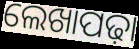
ଲେଖାପଢ଼ା